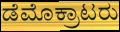
ಡೆಮೊಕ್ರಾಟರು